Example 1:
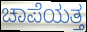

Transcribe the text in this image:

ಚಾಪೆಯತ್ತ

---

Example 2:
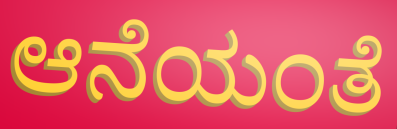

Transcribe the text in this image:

ಆನೆಯಂತೆ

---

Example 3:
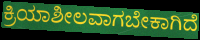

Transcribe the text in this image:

ಕ್ರಿಯಾಶೀಲವಾಗಬೇಕಾಗಿದೆ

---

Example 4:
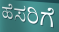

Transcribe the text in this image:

ಹೆಸರಿಗೆ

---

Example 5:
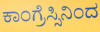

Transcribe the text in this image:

ಕಾಂಗ್ರೆಸ್ಸಿನಿಂದ